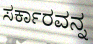
ಸರ್ಕಾರವನ್ನ